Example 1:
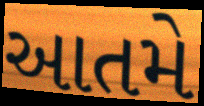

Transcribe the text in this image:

આતમે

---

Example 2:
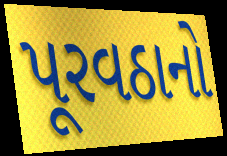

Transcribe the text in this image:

પૂરવઠાનો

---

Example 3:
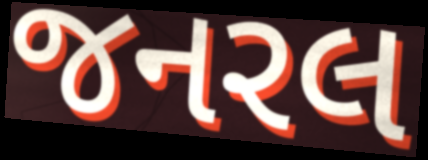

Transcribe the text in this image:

જનરલ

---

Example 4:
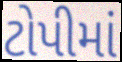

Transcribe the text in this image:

ટોપીમાં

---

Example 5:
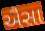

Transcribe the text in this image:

ઐસા